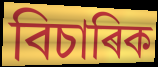
বিচাৰিক